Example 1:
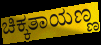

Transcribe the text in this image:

ಚಿಕ್ಕತಾಯಣ್ಣ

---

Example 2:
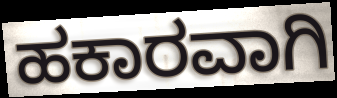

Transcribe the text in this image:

ಹಕಾರವಾಗಿ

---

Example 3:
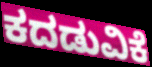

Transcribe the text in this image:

ಕದಡುವಿಕೆ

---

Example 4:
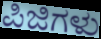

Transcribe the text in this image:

ಪಿಜಿಗಳು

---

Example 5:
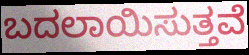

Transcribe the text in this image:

ಬದಲಾಯಿಸುತ್ತವೆ